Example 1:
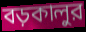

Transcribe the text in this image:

বড়কালুর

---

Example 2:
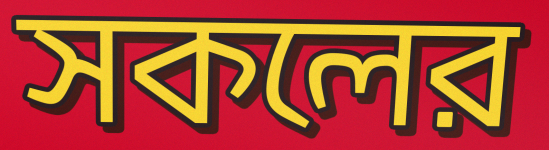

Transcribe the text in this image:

সকলের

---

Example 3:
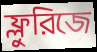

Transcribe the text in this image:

ফ্লুরিজে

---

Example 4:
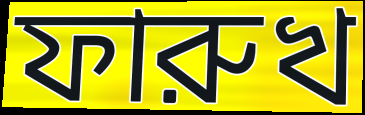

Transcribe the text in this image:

ফারুখ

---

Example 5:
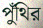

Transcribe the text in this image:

পুঁথির